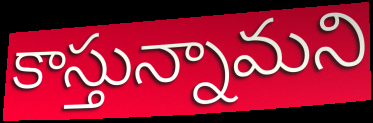
కాస్తున్నామని